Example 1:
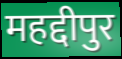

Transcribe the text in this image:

महद्दीपुर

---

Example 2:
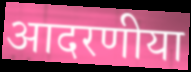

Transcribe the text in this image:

आदरणीया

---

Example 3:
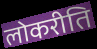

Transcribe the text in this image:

लोकरीति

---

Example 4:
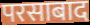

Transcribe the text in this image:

परसाबाद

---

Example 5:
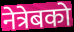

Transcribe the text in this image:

नेत्रेबको